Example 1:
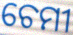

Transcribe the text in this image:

ଚେମୀ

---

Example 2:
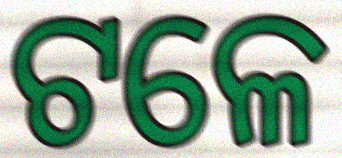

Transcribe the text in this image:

ଟଳେ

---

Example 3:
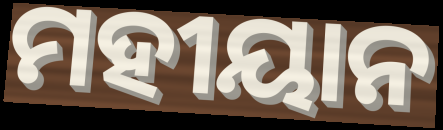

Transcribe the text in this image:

ମହୀୟାନ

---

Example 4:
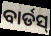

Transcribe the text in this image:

ବାର୍ଡସ୍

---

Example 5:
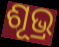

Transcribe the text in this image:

ଶୂଭ୍ର